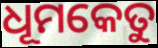
ଧୂମକେତୁ